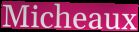
Micheaux